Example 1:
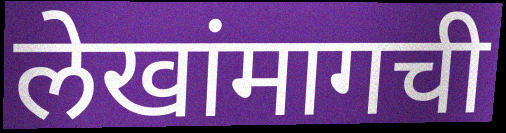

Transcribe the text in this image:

लेखांमागची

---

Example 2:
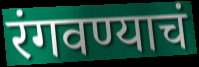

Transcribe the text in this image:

रंगवण्याचं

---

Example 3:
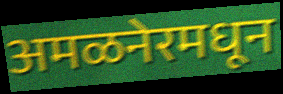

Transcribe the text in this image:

अमळनेरमधून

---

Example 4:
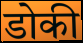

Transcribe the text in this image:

डोकी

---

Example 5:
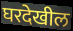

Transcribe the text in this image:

घरदेखील